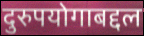
दुरुपयोगाबद्दल